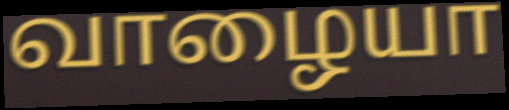
வாழையா